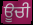
ਊਚੀ